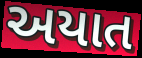
અયાત